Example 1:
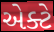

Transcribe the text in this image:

એક્ટે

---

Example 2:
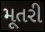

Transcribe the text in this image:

મૂતરી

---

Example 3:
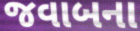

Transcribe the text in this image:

જવાબના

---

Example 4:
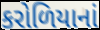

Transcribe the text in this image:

કરોળિયાનાં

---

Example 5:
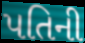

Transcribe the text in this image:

પતિની